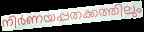
നിർണയപ്പതക്കത്തിലും